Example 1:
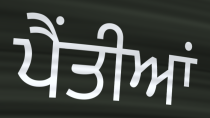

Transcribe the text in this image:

ਪੈਂਤੀਆਂ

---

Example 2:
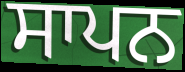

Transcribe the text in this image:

ਸਾਪਨ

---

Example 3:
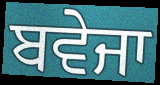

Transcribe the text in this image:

ਬਵੇਜਾ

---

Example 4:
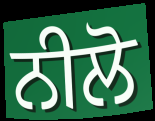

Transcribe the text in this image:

ਨੀਲੋ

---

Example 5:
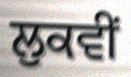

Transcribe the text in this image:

ਲੁਕਵੀਂ